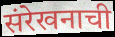
संरेखनाची